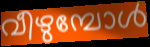
വീഴുമ്പോൾ